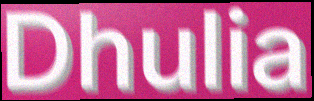
Dhulia